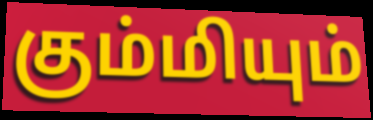
கும்மியும்